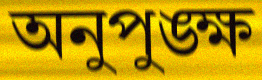
অনুপুঙ্ক্ষ